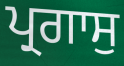
ਪ੍ਰਗਾਸੁ